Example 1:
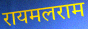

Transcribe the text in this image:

रायमलराम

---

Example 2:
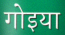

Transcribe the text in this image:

गोइया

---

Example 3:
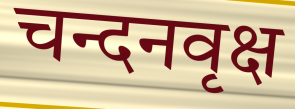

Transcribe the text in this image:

चन्दनवृक्ष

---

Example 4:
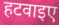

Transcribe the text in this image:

हटवाइए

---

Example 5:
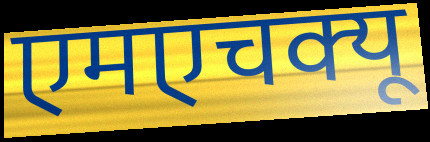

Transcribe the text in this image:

एमएचक्यू